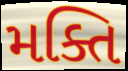
મક્તિ